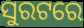
ସୁରଟରେ